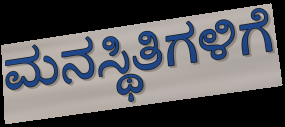
ಮನಸ್ಥಿತಿಗಳಿಗೆ